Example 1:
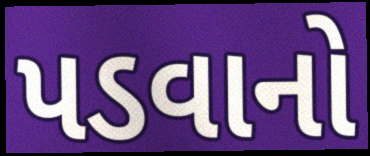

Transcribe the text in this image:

પડવાનો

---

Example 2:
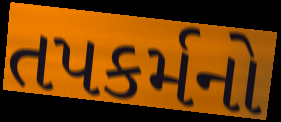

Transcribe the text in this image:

તપકર્મનો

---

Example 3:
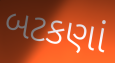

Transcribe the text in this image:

બટકણાં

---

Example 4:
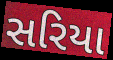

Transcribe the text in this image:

સરિયા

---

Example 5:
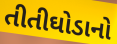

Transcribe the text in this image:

તીતીઘોડાનો